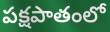
పక్షపాతంలో